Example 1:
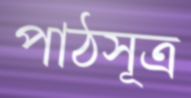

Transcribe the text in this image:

পাঠসূত্র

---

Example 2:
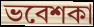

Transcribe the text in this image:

ভবেশকা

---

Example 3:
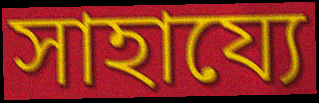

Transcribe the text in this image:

সাহায্যে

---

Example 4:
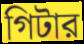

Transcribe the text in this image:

গিটার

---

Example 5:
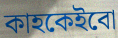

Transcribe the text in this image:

কাহকেইবো